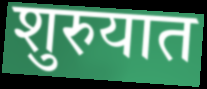
शुरुयात